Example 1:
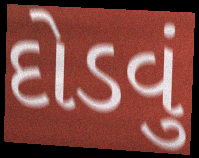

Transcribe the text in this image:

દોડવું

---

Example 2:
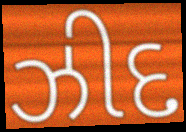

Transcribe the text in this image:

ઝીદ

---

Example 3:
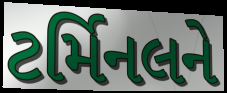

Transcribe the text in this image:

ટર્મિનલને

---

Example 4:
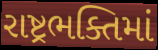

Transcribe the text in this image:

રાષ્ટ્રભક્તિમાં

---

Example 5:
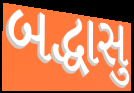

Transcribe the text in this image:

બદ્ધાસુ